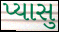
પ્યાસુ